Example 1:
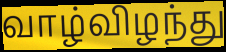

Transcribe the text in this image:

வாழ்விழந்து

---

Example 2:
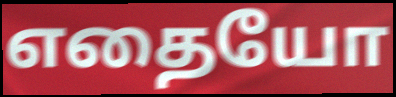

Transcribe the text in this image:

எதையோ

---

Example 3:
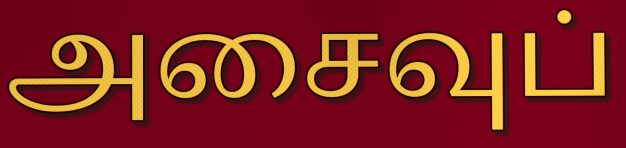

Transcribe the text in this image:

அசைவுப்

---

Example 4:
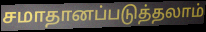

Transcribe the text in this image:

சமாதானப்படுத்தலாம்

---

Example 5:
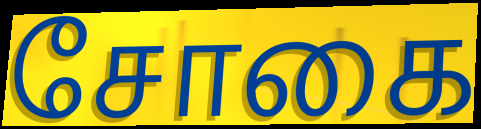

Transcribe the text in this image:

சோகை